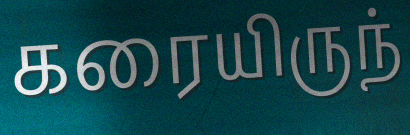
கரையிருந்